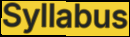
Syllabus